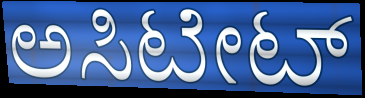
ಅಸಿಟೇಟ್